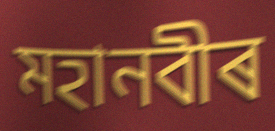
মহানবীৰ